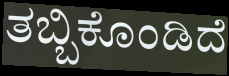
ತಬ್ಬಿಕೊಂಡಿದೆ